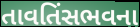
તાવતિંસભવના